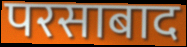
परसाबाद